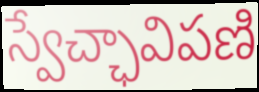
స్వేచ్ఛావిపణి